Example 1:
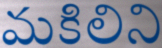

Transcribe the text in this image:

మకిలిని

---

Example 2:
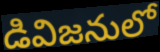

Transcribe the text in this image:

డివిజనులో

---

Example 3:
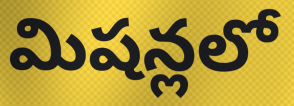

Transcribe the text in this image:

మిషన్లలో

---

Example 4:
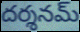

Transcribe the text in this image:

దర్శనమ్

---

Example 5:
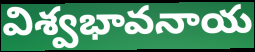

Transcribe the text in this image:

విశ్వభావనాయ